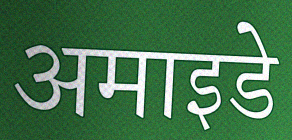
अमाइडे